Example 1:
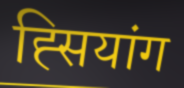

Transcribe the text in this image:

ह्सियांग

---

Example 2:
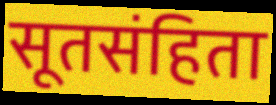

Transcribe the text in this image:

सूतसंहिता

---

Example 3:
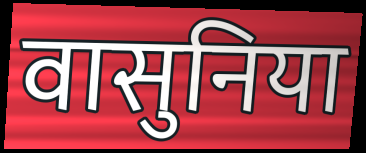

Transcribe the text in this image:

वासुनिया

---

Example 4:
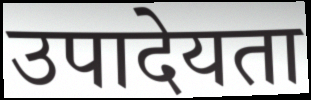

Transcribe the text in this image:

उपादेयता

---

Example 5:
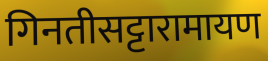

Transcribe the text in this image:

गिनतीसट्टारामायण